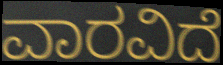
ವಾರವಿದೆ